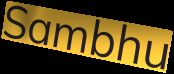
Sambhu